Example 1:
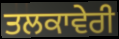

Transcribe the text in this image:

ਤਲਕਾਵੇਰੀ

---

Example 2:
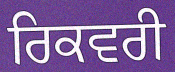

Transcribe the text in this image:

ਰਿਕਵਰੀ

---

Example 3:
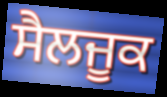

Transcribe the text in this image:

ਸੈਲਜੂਕ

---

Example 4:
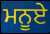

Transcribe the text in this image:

ਮਨੂਏ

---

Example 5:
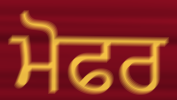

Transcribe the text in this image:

ਮੋਫਰ